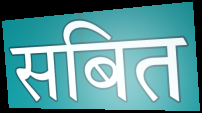
सबित